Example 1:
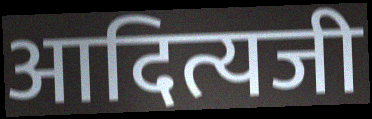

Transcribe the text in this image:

आदित्यजी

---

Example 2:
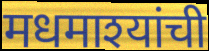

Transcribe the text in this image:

मधमाश्‍यांची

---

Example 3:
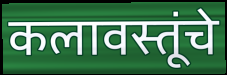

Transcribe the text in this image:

कलावस्तूंचे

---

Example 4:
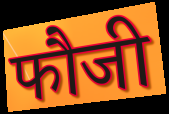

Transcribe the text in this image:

फौजी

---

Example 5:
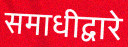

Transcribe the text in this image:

समाधीद्वारे